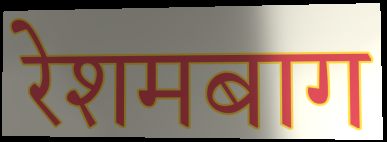
रेशमबाग